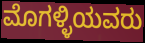
ಮೊಗಳ್ಳಿಯವರು